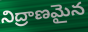
నిద్రాణమైన